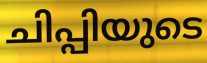
ചിപ്പിയുടെ